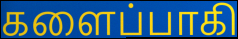
களைப்பாகி